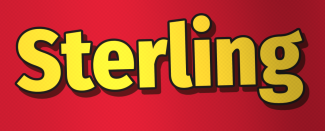
Sterling